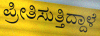
ಪ್ರೀತಿಸುತ್ತಿದ್ದಾಳೆ